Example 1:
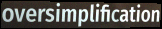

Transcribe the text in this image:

oversimplification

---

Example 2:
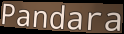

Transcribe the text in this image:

Pandara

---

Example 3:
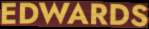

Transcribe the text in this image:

EDWARDS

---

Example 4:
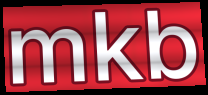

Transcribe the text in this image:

mkb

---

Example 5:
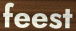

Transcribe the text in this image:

feest